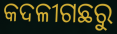
କଦଳୀଗଛରୁ